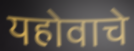
यहोवाचे